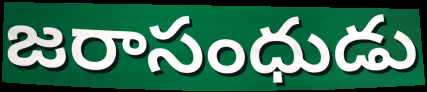
జరాసంధుడు